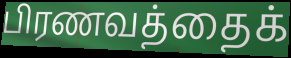
பிரணவத்தைக்